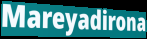
Mareyadirona